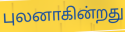
புலனாகின்றது